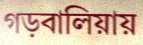
গড়বালিয়ায়